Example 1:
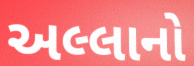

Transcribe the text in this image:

અલ્લાનો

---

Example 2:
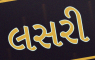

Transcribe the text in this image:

લસરી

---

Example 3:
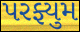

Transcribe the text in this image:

પરફ્યુમ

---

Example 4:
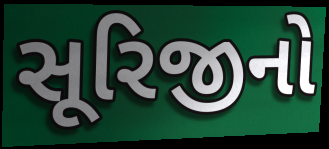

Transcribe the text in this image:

સૂરિજીનો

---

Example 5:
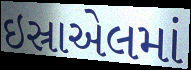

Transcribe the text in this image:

ઇસ્રાએલમાં